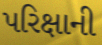
પરિક્ષાની